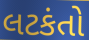
લટકંતો